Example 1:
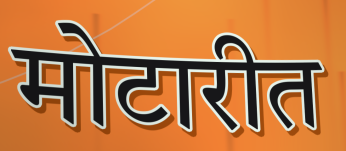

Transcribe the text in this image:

मोटारीत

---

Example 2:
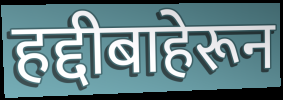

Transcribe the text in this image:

हद्दीबाहेरून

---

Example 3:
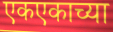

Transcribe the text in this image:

एकएकाच्या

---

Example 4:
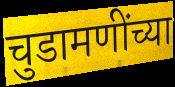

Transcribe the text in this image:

चुडामणींच्या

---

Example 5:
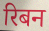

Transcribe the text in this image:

रिबन